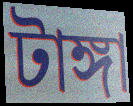
টাঙ্গা